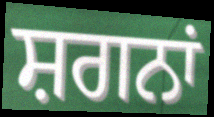
ਸ਼ਗਨਾਂ